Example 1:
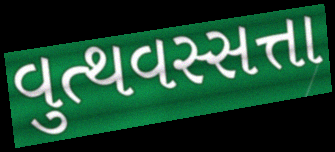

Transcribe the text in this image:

વુત્થવસ્સત્તા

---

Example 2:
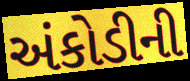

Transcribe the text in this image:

અંકોડીની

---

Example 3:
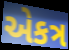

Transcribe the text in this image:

એકત્ર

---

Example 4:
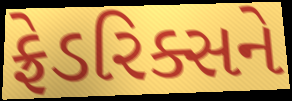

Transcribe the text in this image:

ફ્રેડરિક્સને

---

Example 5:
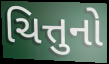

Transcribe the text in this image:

ચિત્તુનો